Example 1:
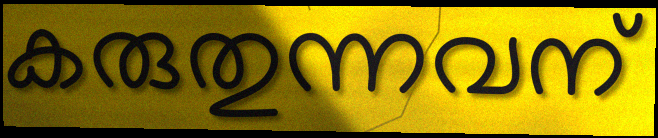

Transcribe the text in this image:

കരുതുന്നവന്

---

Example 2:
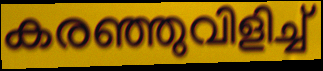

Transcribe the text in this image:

കരഞ്ഞുവിളിച്ച്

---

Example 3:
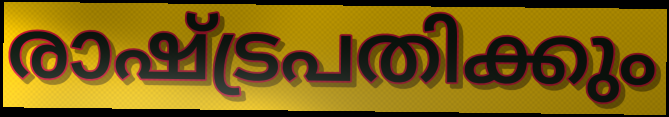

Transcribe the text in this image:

രാഷ്ട്രപതിക്കും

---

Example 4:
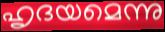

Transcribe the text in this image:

ഹൃദയമെന്നു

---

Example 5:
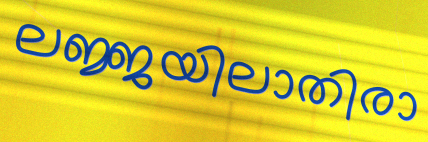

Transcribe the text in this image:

ലജ്ജയിലാതിരാ